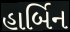
હાર્બિન